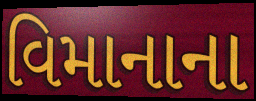
વિમાનાના